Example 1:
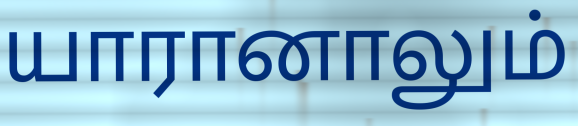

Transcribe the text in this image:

யாரானாலும்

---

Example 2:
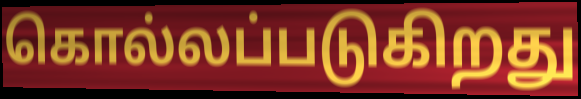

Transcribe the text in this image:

கொல்லப்படுகிறது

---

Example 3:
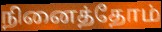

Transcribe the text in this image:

நினைத்தோம்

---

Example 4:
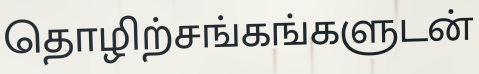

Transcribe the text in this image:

தொழிற்சங்கங்களுடன்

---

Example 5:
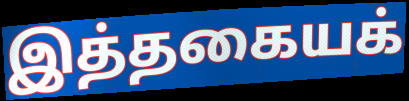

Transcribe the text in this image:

இத்தகையக்